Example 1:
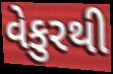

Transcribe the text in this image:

વેકુરથી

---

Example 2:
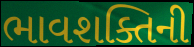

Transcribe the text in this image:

ભાવશક્તિની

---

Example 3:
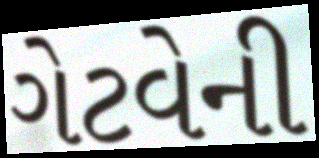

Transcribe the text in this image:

ગેટવેની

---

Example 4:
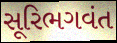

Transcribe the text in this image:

સૂરિભગવંત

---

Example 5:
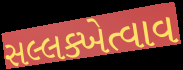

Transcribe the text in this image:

સલ્લક્ખેત્વાવ